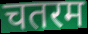
चतरम